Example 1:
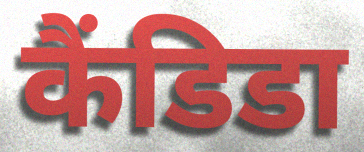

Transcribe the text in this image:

कैंडिडा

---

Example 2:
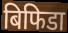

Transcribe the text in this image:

बिफिडा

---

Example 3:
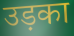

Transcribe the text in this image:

उड़का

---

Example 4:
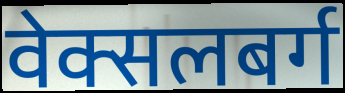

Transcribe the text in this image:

वेक्सलबर्ग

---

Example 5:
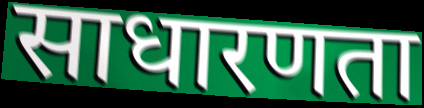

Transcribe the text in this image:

साधारणता